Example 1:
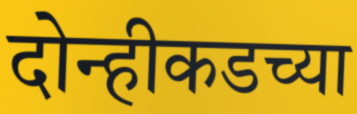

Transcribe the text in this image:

दोन्हीकडच्या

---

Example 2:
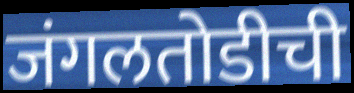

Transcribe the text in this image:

जंगलतोडीची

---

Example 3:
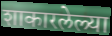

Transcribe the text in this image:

शाकारलेल्या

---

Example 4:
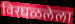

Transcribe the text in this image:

विरघळलेला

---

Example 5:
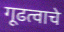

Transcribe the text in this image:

गूढत्वाचे